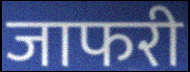
जाफरी